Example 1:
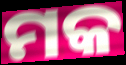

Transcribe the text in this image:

ମକ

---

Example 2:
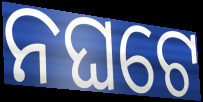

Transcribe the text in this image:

ନଘଟେ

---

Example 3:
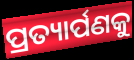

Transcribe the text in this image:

ପ୍ରତ୍ୟାର୍ପଣକୁ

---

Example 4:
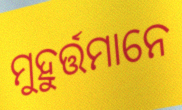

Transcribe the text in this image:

ମୁହୁର୍ତ୍ତମାନେ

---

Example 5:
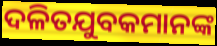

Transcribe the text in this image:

ଦଳିତଯୁବକମାନଙ୍କ